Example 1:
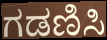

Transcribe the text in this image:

ಗಡಣಿಸಿ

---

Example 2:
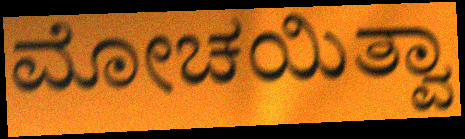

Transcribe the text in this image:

ಮೋಚಯಿತ್ವಾ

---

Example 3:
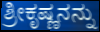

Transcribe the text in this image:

ಶ್ರೀಕೃಷ್ಣನನ್ನು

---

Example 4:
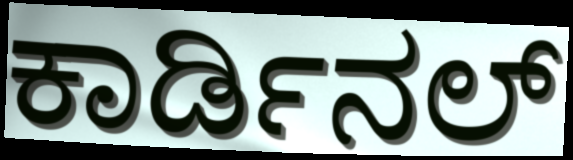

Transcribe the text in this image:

ಕಾರ್ಡಿನಲ್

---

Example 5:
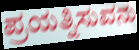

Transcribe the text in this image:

ಪ್ರಯತ್ನಿಸುವನು